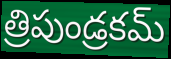
త్రిపుండ్రకమ్